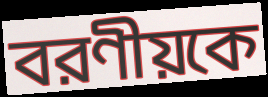
বরণীয়কে